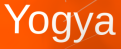
Yogya